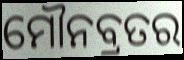
ମୌନବ୍ରତର